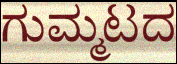
ಗುಮ್ಮಟದ